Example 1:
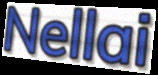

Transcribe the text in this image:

Nellai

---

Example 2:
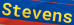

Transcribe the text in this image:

Stevens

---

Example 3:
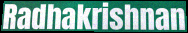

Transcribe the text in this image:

Radhakrishnan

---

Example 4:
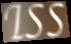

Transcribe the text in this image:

ISS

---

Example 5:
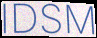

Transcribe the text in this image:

IDSM